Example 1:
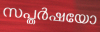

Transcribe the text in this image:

സപ്തർഷയോ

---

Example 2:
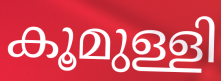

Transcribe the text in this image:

കൂമുള്ളി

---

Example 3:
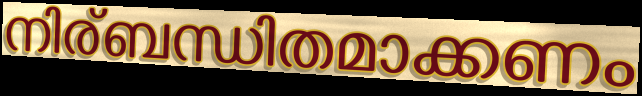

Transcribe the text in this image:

നിര്ബന്ധിതമാക്കണം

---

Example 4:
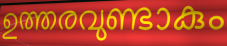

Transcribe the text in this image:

ഉത്തരവുണ്ടാകും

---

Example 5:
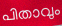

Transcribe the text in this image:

പിതാവും